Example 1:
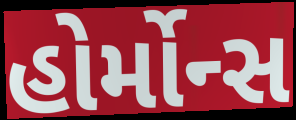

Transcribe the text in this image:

હોર્મોન્સ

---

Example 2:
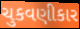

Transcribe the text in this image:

ચુકવણીકાર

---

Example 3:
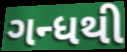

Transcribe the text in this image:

ગન્ધથી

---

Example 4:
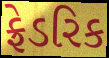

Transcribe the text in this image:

ફ્રેડરિક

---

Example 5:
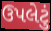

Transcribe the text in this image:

ઉપલેટું